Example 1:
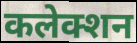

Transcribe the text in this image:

कलेक्शन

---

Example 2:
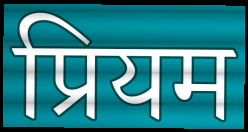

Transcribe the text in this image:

प्रियम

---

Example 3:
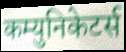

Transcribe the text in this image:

कम्युनिकेटर्स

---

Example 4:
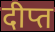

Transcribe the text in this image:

दीप्त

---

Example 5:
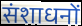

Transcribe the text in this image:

संशाधनों